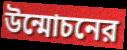
উন্মোচনের